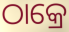
ଠାକ୍ରେ